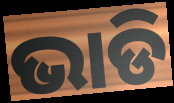
ଭାଡି